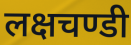
लक्षचण्डी